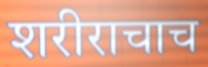
शरीराचाच